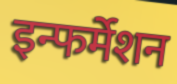
इन्फर्मेशन